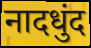
नादधुंद